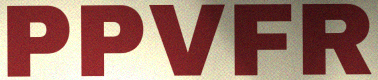
PPVFR